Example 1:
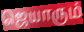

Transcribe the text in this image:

ஜெயாரும்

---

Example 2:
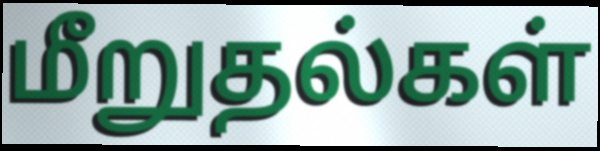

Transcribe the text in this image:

மீறுதல்கள்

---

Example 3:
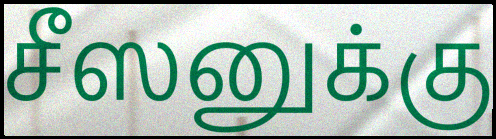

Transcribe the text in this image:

சீஸனுக்கு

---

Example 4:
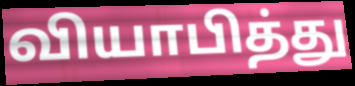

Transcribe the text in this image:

வியாபித்து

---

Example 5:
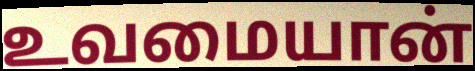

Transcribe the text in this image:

உவமையான்